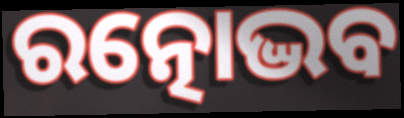
ରତ୍ନୋଦ୍ଭବ